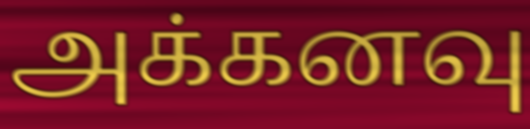
அக்கனவு